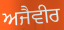
ਅਜੈਵੀਰ